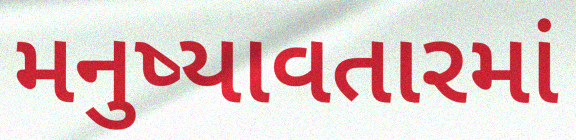
મનુષ્યાવતારમાં